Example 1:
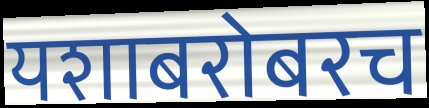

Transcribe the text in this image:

यशाबरोबरच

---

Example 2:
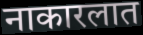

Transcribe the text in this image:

नाकारलात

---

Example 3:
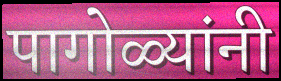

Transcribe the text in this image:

पागोळ्यांनी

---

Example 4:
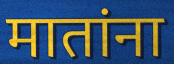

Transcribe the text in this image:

मातांना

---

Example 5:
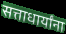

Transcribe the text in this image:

सत्ताधार्यांना